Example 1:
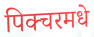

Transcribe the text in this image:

पिक्चरमधे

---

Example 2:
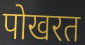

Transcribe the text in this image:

पोखरत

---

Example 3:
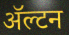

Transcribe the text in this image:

ॲल्टन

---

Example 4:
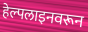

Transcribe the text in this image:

हेल्पलाइनवरून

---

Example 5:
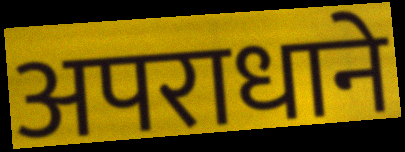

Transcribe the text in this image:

अपराधाने